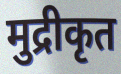
मुद्रीकृत